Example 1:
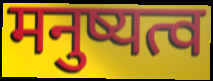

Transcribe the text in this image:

मनुष्यत्‍व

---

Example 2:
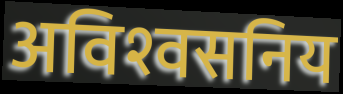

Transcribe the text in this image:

अविश्वसनिय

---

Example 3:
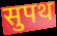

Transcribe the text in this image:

सुपथ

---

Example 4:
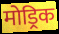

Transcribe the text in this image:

मोड्रिक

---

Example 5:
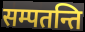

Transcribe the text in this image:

सम्पतन्ति